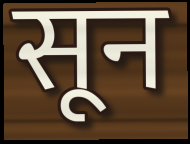
सून